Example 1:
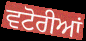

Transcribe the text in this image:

ਵਟੋਰੀਆਂ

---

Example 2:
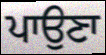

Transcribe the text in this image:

ਪਾਉਣਾ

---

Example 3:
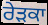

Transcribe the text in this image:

ਰੇੜਕਾ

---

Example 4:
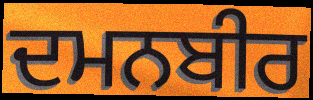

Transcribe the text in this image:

ਦਮਨਬੀਰ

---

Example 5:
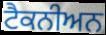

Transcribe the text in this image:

ਟੈਕਨੀਅਨ